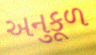
અનુકૂળ